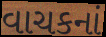
વાચકનાં